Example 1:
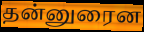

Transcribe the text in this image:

தன்னுரைன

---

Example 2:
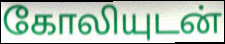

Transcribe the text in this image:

கோலியுடன்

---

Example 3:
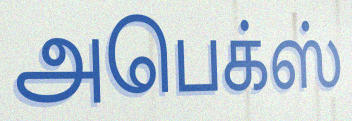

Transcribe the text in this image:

அபெக்ஸ்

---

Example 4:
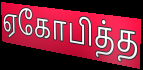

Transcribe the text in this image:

ஏகோபித்த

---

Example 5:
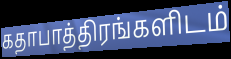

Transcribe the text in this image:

கதாபாத்திரங்களிடம்